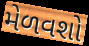
મેળવશો